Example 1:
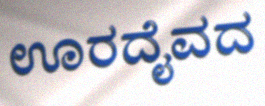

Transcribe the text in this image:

ಊರದೈವದ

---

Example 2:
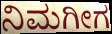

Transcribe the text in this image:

ನಿಮಗೀಗ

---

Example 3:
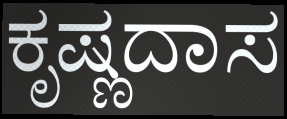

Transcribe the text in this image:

ಕೃಷ್ಣದಾಸ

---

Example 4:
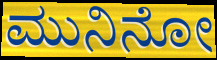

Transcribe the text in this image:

ಮುನಿನೋ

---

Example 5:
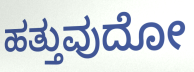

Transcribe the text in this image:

ಹತ್ತುವುದೋ